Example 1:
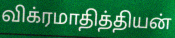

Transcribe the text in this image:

விக்ரமாதித்தியன்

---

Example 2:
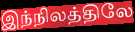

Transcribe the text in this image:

இந்நிலத்திலே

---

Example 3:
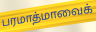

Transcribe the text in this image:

பரமாத்மாவைக்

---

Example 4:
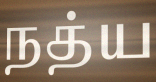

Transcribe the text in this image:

நத்ய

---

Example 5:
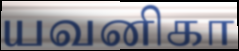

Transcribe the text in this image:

யவனிகா